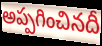
అప్పగించినదీ